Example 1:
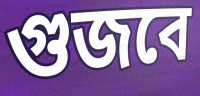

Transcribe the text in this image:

গুজবে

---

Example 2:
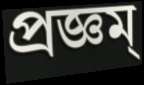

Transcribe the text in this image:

প্রজ্ঞম্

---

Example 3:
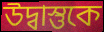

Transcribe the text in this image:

উদ্বাস্তুকে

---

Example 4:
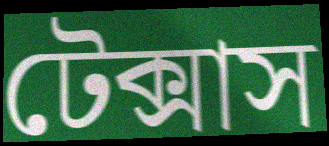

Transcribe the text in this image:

টেক্সাস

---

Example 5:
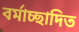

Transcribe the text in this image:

বর্মাচ্ছাদিত